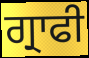
ਗ੍ਰਾਫੀ